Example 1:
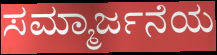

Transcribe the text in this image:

ಸಮ್ಮಾರ್ಜನೆಯ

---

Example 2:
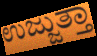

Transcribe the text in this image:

ಉಜ್ಜುತ್ತಾ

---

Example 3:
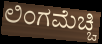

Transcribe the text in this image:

ಲಿಂಗಮೆಚ್ಚಿ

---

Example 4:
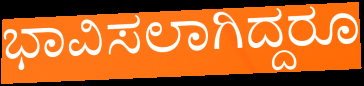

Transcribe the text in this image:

ಭಾವಿಸಲಾಗಿದ್ದರೂ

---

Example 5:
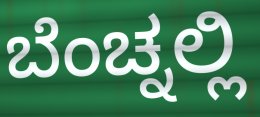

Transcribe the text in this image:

ಬೆಂಚ್ನಲ್ಲಿ